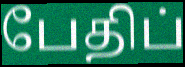
பேதிப்